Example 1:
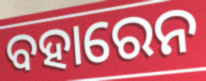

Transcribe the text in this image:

ବହାରେନ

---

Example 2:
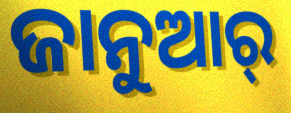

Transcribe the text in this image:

ଜାନୁଆର୍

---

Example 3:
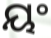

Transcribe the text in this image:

ୟଂ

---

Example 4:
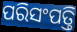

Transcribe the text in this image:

ପରିସଂପତ୍ତି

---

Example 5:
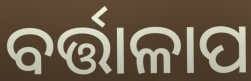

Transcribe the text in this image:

ବର୍ତ୍ତାଳାପ